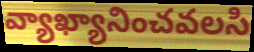
వ్యాఖ్యానించవలసి